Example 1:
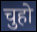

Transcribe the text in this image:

चुहो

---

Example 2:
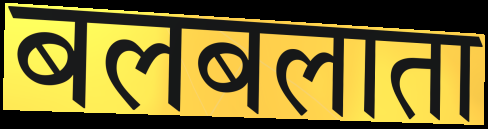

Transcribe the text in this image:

बलबलाता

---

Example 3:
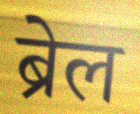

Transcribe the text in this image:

ब्रेल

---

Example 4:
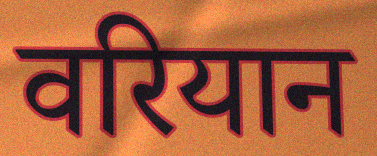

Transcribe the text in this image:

वरियान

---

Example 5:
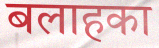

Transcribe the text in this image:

बलाहका